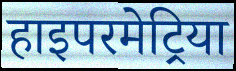
हाइपरमेट्रिया